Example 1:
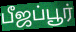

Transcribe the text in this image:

பீஜப்பூர்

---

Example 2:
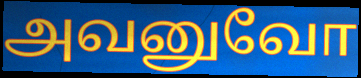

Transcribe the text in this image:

அவனுவோ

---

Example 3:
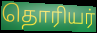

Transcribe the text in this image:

தொரியர்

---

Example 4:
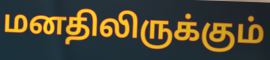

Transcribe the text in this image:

மனதிலிருக்கும்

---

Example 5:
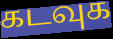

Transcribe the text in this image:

கடவுக